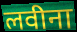
लवीना